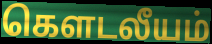
கெளடலீயம்